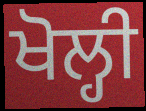
ਖੋਲ੍ਹੀ